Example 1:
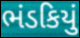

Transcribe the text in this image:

ભંડકિયું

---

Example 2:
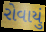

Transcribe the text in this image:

રોવાયું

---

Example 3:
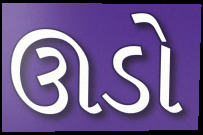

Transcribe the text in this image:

ઊડો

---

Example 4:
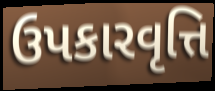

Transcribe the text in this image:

ઉપકારવૃત્તિ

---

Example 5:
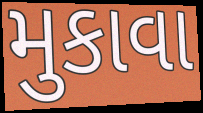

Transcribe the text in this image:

મુકાવા